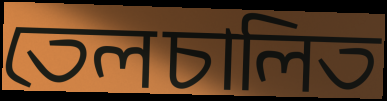
তেলচালিত